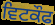
ਵਿਟਕੌਫ